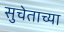
सुचेताच्या